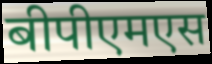
बीपीएमएस